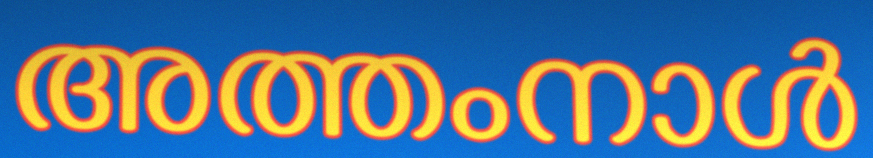
അത്തംനാൾ